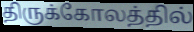
திருக்கோலத்தில்